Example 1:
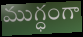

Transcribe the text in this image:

ముగ్ధంగా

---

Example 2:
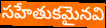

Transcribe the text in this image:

సహేతుకమైనవి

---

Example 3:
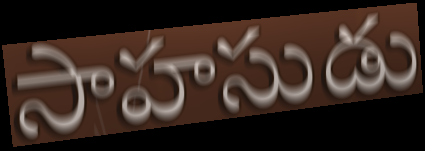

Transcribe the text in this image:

సాహసుడు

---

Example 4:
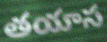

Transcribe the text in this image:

తయాస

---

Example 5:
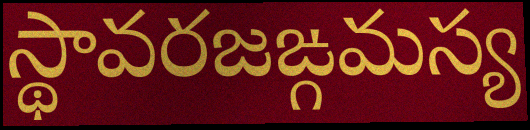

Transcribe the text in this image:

స్థావరజఙ్గమస్య